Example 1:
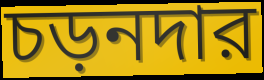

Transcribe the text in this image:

চড়নদার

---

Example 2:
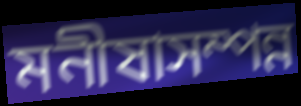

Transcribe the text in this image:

মনীষাসম্পন্ন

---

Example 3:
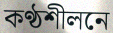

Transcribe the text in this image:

কণ্ঠশীলনে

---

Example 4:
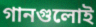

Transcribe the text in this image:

গানগুলোই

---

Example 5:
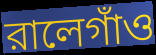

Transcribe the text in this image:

রালেগাঁও